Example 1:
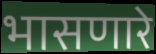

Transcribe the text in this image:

भासणारे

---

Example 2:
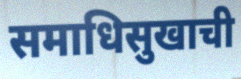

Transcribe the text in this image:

समाधिसुखाची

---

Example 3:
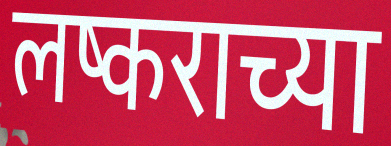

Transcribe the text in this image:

लष्कराच्या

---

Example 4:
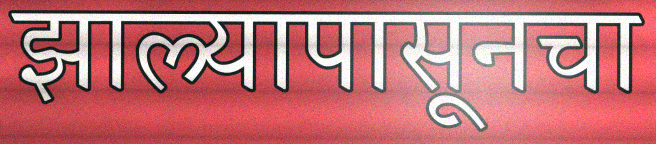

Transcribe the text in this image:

झाल्यापासूनचा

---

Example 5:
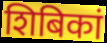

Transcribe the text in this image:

शिबिकां